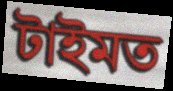
টাইমত